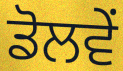
ਡੋਲਵੇਂ